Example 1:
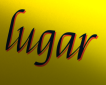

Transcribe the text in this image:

lugar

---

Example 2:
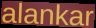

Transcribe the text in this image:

alankar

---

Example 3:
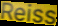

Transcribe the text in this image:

Reiss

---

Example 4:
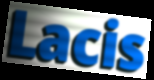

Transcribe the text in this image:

Lacis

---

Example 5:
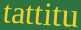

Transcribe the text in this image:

tattitu